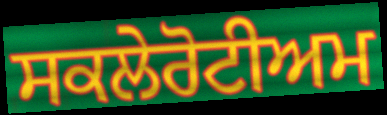
ਸਕਲੇਰੋਟੀਅਮ